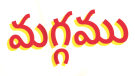
మగ్గము